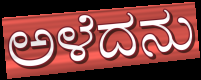
ಅಳೆದನು